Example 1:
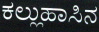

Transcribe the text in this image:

ಕಲ್ಲುಹಾಸಿನ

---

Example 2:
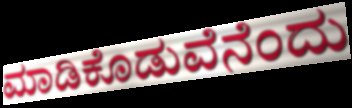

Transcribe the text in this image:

ಮಾಡಿಕೊಡುವೆನೆಂದು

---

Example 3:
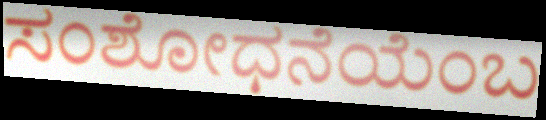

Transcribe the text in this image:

ಸಂಶೋಧನೆಯೆಂಬ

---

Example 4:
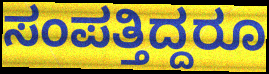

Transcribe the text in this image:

ಸಂಪತ್ತಿದ್ದರೂ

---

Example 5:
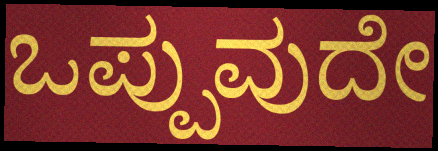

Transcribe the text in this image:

ಒಪ್ಪುವುದೇ